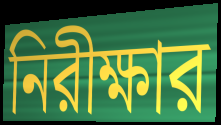
নিরীক্ষার